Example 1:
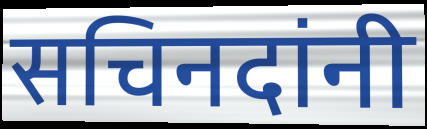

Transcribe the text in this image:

सचिनदांनी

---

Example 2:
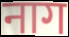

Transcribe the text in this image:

नाग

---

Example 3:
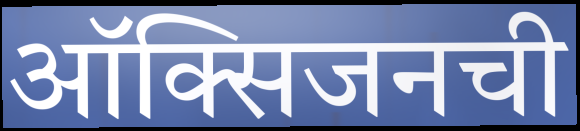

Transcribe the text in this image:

ऑक्सिजनची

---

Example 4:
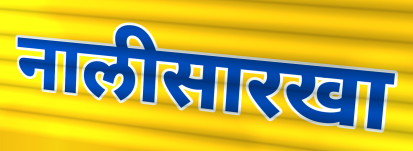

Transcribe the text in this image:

नालीसारखा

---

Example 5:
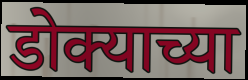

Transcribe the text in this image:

डोक्याच्या